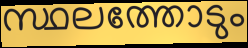
സ്ഥലത്തോടും